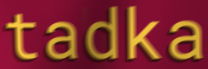
tadka